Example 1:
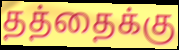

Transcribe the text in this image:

தத்தைக்கு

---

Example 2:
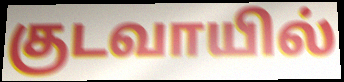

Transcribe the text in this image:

குடவாயில்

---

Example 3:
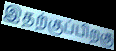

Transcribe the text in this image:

இதற்குப்பிறகு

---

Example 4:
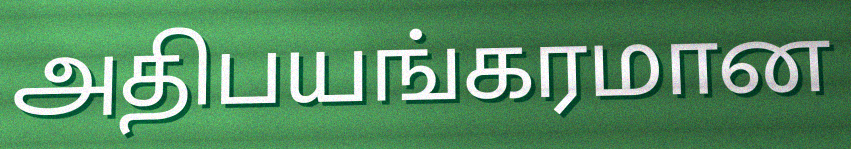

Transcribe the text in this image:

அதிபயங்கரமான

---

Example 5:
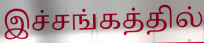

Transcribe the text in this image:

இச்சங்கத்தில்